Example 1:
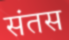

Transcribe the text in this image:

संतस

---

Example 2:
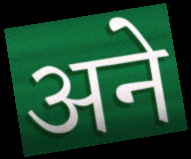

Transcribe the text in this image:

अने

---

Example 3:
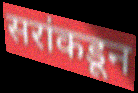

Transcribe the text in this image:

सरांकडून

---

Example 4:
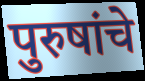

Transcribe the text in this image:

पुरुषांचे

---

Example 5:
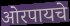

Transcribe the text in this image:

ओरपायचे